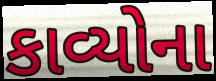
કાવ્યોના